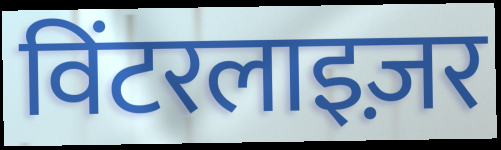
विंटरलाइज़र